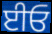
ਈਓ